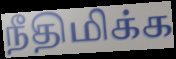
நீதிமிக்க